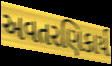
અવતરણિકાર્ય